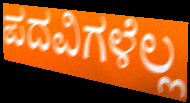
ಪದವಿಗಳೆಲ್ಲ